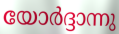
യോർദ്ദാന്നു